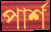
পার্শ